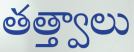
తత్త్వాలు